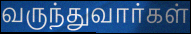
வருந்துவார்கள்